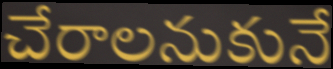
చేరాలనుకునే